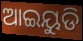
ଆଇୟୁଡି